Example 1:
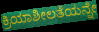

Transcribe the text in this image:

ಕ್ರಿಯಾಶೀಲತೆಯನ್ನೇ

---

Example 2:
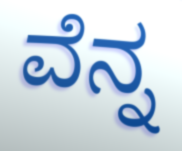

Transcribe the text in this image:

ವೆನ್ನ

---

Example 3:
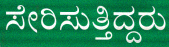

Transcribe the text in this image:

ಸೇರಿಸುತ್ತಿದ್ದರು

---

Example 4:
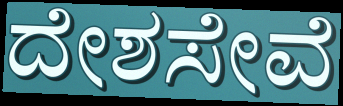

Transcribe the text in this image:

ದೇಶಸೇವೆ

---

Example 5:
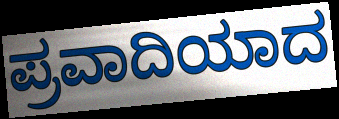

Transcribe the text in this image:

ಪ್ರವಾದಿಯಾದ